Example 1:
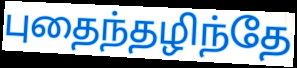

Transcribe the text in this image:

புதைந்தழிந்தே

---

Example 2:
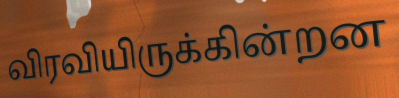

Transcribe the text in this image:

விரவியிருக்கின்றன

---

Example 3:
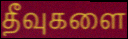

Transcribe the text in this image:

தீவுகளை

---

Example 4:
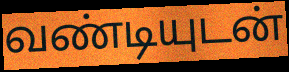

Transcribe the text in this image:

வண்டியுடன்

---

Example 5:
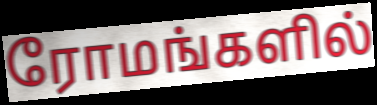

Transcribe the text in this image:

ரோமங்களில்